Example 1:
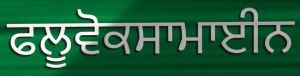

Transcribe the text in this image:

ਫਲੂਵੋਕਸਾਮਾਈਨ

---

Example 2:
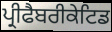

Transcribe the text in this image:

ਪ੍ਰੀਫੈਬਰੀਕੇਟਿਡ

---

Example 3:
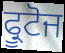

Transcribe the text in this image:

ਫ੍ਰੂਟੋਜ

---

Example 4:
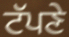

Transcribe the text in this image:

ਟੱਪਣੇ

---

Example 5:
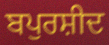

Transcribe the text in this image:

ਬਪੁਰਸ਼ੀਦ